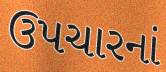
ઉપચારનાં